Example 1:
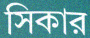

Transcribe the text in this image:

সিকার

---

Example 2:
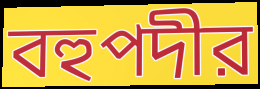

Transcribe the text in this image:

বহুপদীর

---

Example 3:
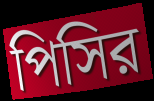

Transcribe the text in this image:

পিসির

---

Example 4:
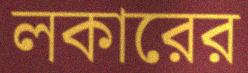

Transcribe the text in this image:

লকারের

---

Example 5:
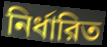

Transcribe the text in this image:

নির্ধারিত